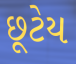
છૂટેય